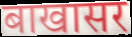
बाखासर